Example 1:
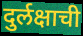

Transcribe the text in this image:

दुर्लक्षाची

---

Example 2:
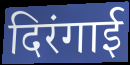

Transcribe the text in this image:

दिरंगाई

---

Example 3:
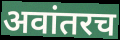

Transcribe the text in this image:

अवांतरच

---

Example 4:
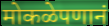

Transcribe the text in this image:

मोकळेपणानं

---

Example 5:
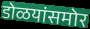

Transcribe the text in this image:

डोळयांसमोर